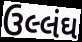
ઉલ્લંઘ